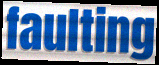
faulting